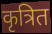
कृत्रित